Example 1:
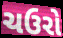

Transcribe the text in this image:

ચઉરો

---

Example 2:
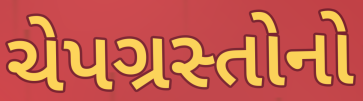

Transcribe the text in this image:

ચેપગ્રસ્તોનો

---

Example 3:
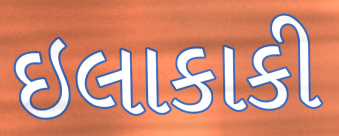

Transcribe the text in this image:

ઇલાકાકી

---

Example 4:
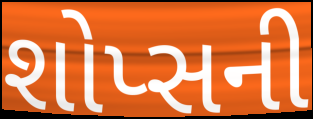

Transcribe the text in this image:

શોપ્સની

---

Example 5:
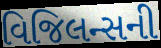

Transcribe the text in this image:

વિજિલન્સની